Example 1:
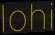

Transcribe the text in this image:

lohi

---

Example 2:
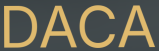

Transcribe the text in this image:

DACA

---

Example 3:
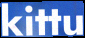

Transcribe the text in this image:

kittu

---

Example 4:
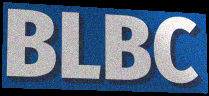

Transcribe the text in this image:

BLBC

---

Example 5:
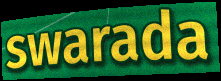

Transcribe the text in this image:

swarada